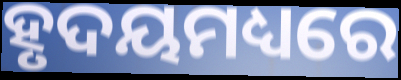
ହୃଦୟମଧ୍ୟରେ